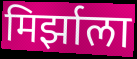
मिर्झाला